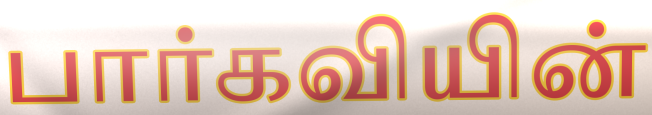
பார்கவியின்